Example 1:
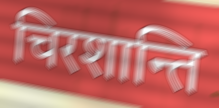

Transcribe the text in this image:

चिरशान्ति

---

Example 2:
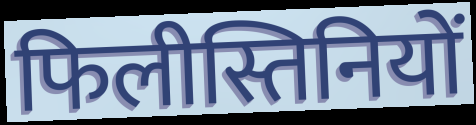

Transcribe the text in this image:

फिलीस्तिनियों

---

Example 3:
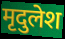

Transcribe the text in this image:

मृदुलेश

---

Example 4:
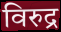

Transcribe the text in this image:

विरुद्र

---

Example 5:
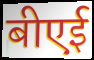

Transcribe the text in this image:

बीएई